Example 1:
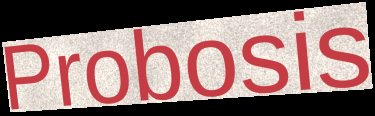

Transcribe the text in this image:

Probosis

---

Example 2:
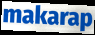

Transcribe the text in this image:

makarap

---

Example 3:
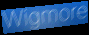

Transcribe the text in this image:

Wigmore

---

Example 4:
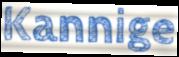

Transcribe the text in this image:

Kannige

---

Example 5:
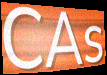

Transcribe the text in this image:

CAs